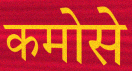
कमोसे